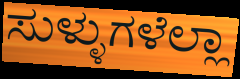
ಸುಳ್ಳುಗಳೆಲ್ಲಾ